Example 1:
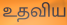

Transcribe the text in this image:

உதவிய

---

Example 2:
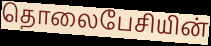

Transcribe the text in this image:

தொலைபேசியின்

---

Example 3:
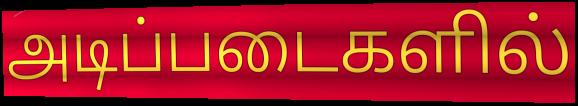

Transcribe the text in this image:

அடிப்படைகளில்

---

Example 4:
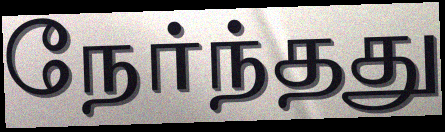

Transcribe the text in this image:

நேர்ந்தது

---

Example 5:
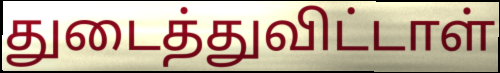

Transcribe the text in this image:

துடைத்துவிட்டாள்